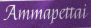
Ammapettai